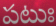
పటుః